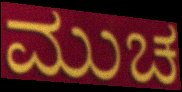
ಮುಚ